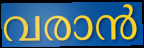
വരാൻ